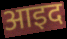
आइद